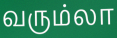
வரும்லா